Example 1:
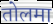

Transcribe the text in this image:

तोलमा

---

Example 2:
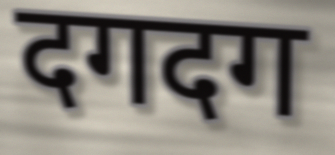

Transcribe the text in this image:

दगदग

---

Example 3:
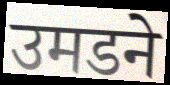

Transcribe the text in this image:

उमडने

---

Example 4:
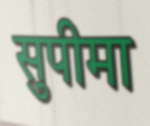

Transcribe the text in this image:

सुपीमा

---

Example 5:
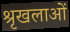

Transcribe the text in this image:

श्रृखलाओं